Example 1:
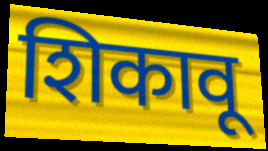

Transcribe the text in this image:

शिकावू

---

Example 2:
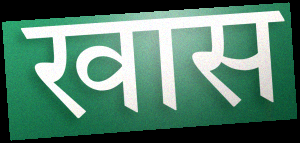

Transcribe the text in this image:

खास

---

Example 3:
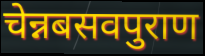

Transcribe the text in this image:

चेन्नबसवपुराण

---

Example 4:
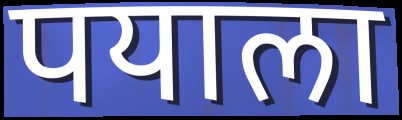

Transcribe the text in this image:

पयाला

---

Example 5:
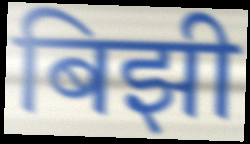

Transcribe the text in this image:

बिझी